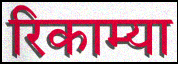
रिकाम्या